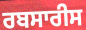
ਰਬਸਾਰੀਸ